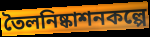
তৈলনিষ্কাশনকল্পে